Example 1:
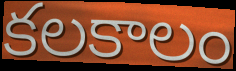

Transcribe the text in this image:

కలకాలం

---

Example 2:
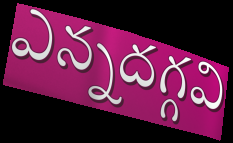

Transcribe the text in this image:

ఎన్నదగ్గవి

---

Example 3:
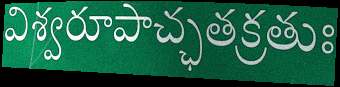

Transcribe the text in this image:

విశ్వరూపాచ్ఛతక్రతుః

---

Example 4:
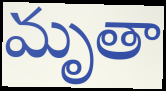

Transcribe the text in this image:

మృతా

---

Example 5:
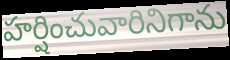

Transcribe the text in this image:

హర్షించువారినిగాను